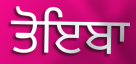
ਤੋਇਬਾ